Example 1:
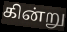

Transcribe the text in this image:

கின்று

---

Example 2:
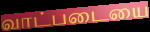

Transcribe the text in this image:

வாட்படையை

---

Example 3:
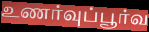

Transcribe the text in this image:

உணர்வுப்பூர்வ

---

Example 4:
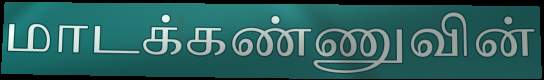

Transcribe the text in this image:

மாடக்கண்ணுவின்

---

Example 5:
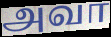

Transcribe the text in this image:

அவா